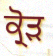
ਕ੍ਰੋੜ